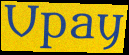
Upay